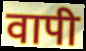
वापी